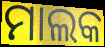
ମାଲକ